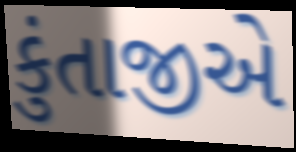
કુંતાજીએ